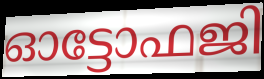
ഓട്ടോഫജി